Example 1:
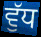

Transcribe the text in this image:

ਵੁੱਧ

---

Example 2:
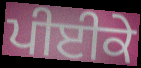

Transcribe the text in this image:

ਪੀਈਕੇ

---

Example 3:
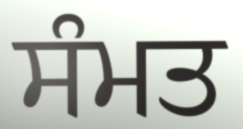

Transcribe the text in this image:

ਸੰਮਤ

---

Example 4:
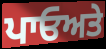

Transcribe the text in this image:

ਪਾਓਅਤੇ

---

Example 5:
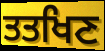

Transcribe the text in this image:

ਤਤਖਿਣ